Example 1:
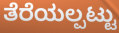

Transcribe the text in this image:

ತೆರೆಯಲ್ಪಟ್ಟು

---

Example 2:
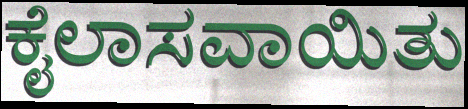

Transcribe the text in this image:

ಕೈಲಾಸವಾಯಿತು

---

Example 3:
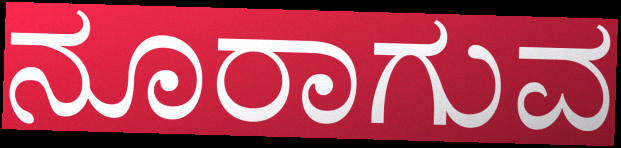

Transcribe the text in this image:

ನೂರಾಗುವ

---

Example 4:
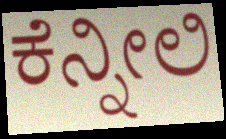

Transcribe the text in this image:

ಕೆನ್ನೀಲಿ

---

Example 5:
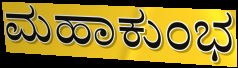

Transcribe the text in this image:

ಮಹಾಕುಂಭ